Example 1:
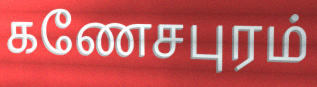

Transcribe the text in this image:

கணேசபுரம்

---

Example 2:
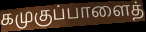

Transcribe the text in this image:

கமுகுப்பாளைத்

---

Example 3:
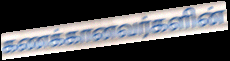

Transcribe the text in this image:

கணக்கானவர்களின்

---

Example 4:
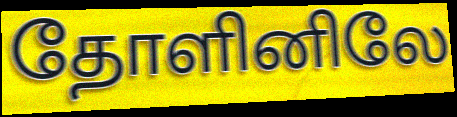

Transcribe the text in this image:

தோளினிலே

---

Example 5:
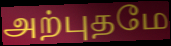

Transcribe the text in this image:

அற்புதமே